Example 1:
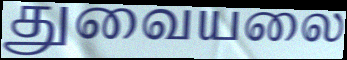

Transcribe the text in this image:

துவையலை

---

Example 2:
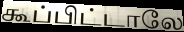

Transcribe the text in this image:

கூப்பிட்டாலே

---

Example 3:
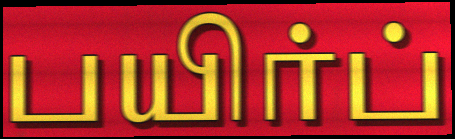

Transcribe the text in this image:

பயிர்ப்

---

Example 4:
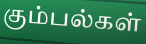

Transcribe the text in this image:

கும்பல்கள்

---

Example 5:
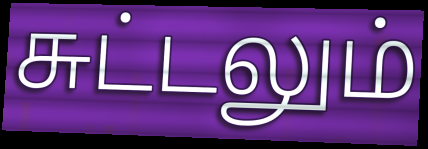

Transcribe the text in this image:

சுட்டலும்